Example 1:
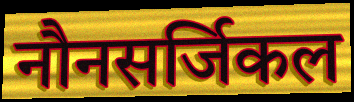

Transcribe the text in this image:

नौनसर्जिकल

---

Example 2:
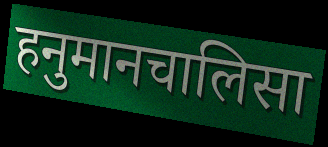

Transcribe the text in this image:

हनुमानचालिसा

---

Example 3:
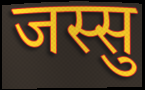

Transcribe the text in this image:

जस्सु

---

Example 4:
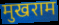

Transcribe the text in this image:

मुखराम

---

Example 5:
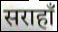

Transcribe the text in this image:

सराहाँ